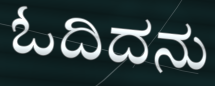
ಓದಿದನು